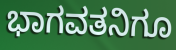
ಭಾಗವತನಿಗೂ